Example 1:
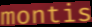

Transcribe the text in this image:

montis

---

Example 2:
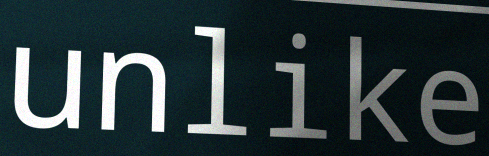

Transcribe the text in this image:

unlike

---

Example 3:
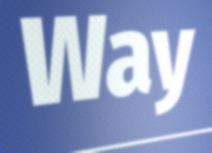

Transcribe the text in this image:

Way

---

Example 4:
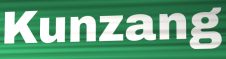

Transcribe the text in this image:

Kunzang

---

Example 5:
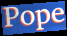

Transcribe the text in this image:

Pope